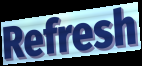
Refresh